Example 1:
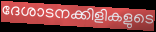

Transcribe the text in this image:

ദേശാടനക്കിളികളുടെ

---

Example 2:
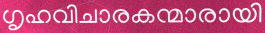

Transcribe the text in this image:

ഗൃഹവിചാരകന്മാരായി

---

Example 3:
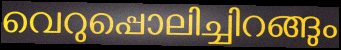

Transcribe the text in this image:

വെറുപ്പൊലിച്ചിറങ്ങും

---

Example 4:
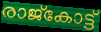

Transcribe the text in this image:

രാജ്കോട്ട്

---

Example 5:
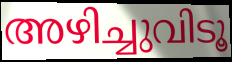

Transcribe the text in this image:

അഴിച്ചുവിടൂ